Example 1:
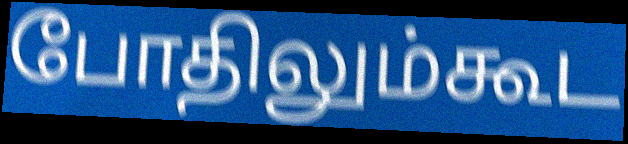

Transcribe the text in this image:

போதிலும்கூட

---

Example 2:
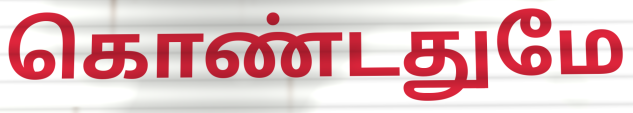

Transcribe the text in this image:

கொண்டதுமே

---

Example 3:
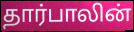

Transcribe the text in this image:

தார்பாலின்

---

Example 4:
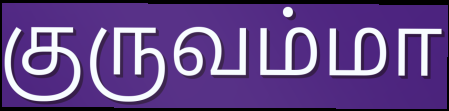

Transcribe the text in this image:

குருவம்மா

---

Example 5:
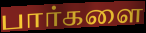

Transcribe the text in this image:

பார்களை